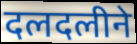
दलदलीने